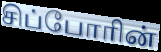
சிப்போரின்